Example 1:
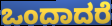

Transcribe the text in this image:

ಒಂದಾದರೆ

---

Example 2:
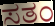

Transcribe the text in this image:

ಸತಂ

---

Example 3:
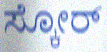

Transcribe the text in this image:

ಸ್ಕೋರ್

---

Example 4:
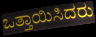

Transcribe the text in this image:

ಒತ್ತಾಯಿಸಿದರು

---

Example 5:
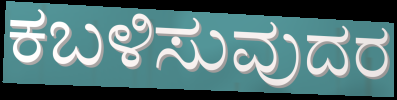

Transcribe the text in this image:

ಕಬಳಿಸುವುದರ